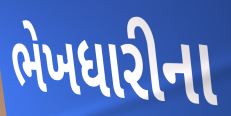
ભેખધારીના